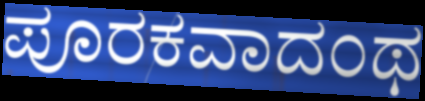
ಪೂರಕವಾದಂಥ